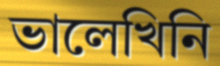
ভালেখিনি